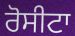
ਰੋਸੀਟਾ